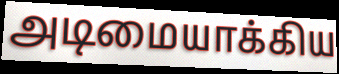
அடிமையாக்கிய